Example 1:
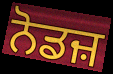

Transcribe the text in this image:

ਨੋਡਜ਼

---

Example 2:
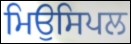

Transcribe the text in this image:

ਮਿਉਸਿਪਲ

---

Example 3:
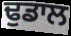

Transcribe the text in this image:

ਢੁਡਾਲ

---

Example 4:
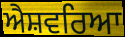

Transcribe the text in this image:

ਐਸ਼ਵਰਿਆ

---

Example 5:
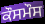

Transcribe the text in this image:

ਕੌਸਮੌਸ